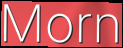
Morn